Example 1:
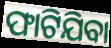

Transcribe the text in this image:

ଫାଟିଯିବା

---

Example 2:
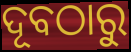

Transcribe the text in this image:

ଦୂବଠାରୁ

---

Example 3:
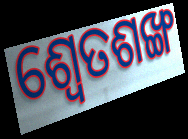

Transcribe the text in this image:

ଶ୍ୱେତଶଙ୍ଖ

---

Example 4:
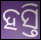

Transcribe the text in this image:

ହସ୍ତି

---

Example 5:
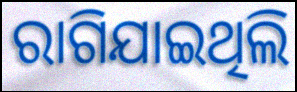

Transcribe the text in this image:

ରାଗିଯାଇଥିଲି